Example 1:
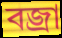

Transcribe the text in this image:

বজ্রা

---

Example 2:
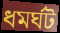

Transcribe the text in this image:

ধমর্ঘট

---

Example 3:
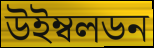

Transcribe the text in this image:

উইম্বলডন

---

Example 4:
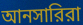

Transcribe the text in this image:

আনসারিরা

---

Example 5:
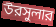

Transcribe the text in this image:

উরসুলার